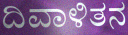
ದಿವಾಳಿತನ